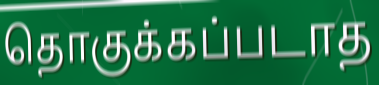
தொகுக்கப்படாத